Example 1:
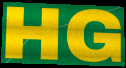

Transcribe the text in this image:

HG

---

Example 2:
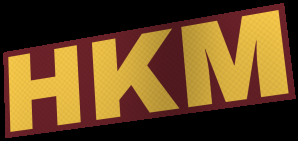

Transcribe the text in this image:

HKM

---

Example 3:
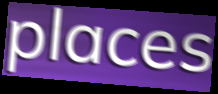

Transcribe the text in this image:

places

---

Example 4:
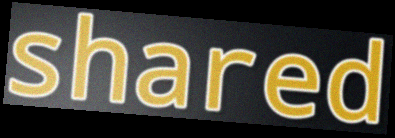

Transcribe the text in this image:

shared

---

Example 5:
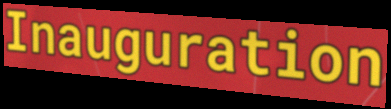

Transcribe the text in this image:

Inauguration